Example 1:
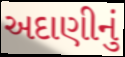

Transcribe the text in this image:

અદાણીનું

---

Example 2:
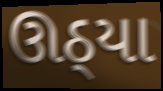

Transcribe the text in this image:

ઊઠ્યા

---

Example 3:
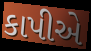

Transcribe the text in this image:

કાપીએ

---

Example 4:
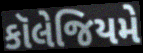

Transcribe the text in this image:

કૉલેજિયમે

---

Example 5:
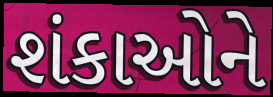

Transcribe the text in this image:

શંકાઓને